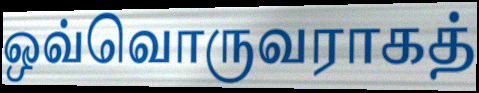
ஒவ்வொருவராகத்